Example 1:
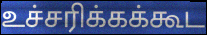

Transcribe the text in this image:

உச்சரிக்கக்கூட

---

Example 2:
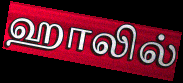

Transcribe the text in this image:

ஹாலில்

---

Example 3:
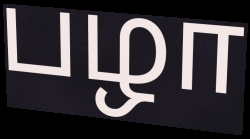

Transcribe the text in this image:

பழா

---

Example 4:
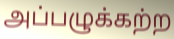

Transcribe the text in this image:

அப்பழுக்கற்ற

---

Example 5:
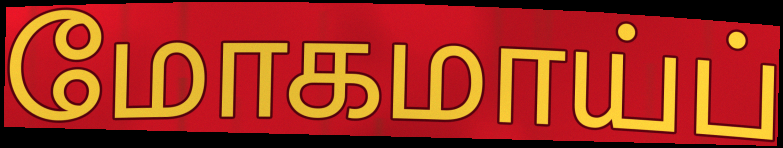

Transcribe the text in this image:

மோகமாய்ப்